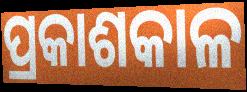
ପ୍ରକାଶକାଳ